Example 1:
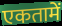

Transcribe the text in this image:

एकतामें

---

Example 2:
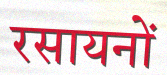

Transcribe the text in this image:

रसायनों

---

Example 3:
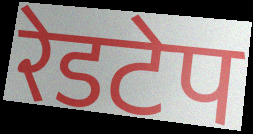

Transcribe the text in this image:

रेडटेप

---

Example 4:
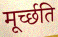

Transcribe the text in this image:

मूर्च्छति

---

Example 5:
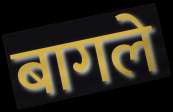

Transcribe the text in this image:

बागले